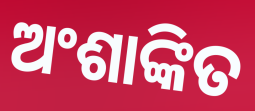
ଅଂଶାଙ୍କିତ